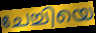
ചേച്ചിയെ